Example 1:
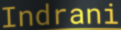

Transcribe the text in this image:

Indrani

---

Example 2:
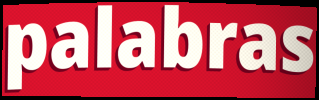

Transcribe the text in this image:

palabras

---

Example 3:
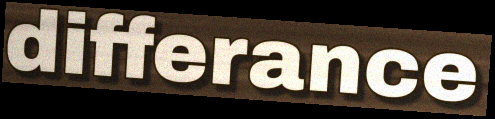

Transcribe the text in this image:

differance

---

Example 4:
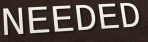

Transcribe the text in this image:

NEEDED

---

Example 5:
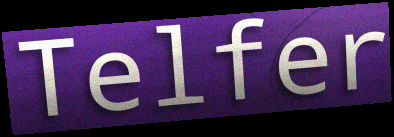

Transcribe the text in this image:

Telfer